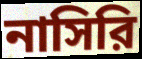
নাসিরি